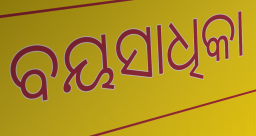
ବୟସାଧିକା